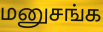
மனுசங்க